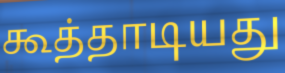
கூத்தாடியது